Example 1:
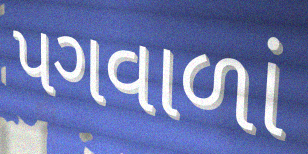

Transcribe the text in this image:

પગવાળાં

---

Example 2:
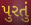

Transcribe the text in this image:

પુરતું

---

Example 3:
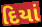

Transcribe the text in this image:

દિયાં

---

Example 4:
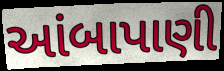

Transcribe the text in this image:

આંબાપાણી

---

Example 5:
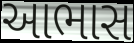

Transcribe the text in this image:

આભાસ